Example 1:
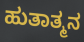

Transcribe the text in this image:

ಹುತಾತ್ಮನ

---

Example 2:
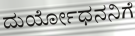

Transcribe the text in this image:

ದುರ್ಯೋಧನನಿಗೆ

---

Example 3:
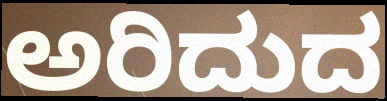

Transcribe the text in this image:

ಅರಿದುದ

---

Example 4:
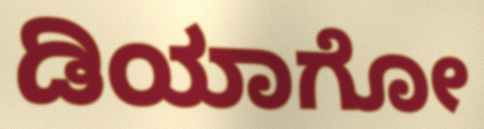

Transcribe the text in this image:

ಡಿಯಾಗೋ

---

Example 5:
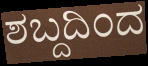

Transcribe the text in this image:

ಶಬ್ದದಿಂದ